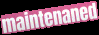
maintenaned